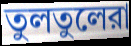
তুলতুলেরা